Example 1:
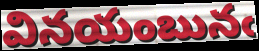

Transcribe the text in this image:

వినయంబునఁ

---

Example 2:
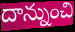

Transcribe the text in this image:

దాన్నుంచి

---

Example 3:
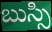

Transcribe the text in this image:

బుస్సి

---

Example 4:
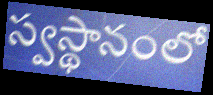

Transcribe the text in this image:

స్వస్థానంలో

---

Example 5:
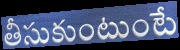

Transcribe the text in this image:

తీసుకుంటుంటే